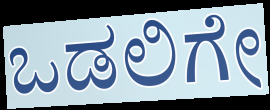
ಒಡಲಿಗೇ